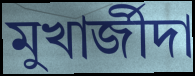
মুখার্জীদা